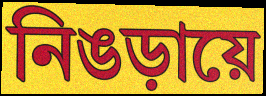
নিঙড়ায়ে